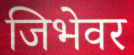
जिभेवर